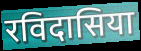
रविदासिया